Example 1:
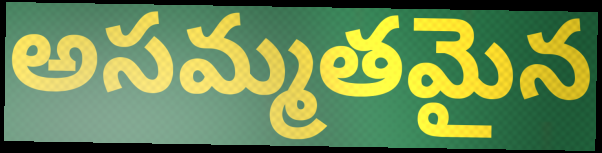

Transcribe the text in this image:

అసమ్మతమైన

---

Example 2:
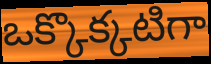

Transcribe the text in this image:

ఒక్కొక్కటిగా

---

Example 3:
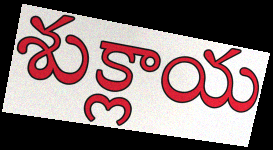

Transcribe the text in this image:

శుక్లాయ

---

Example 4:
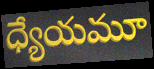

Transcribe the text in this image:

ధ్యేయమూ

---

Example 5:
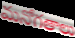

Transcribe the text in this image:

మనోగతాలు